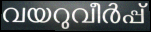
വയറുവീർപ്പ്